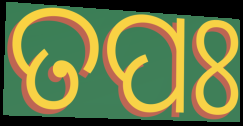
ତପଃ